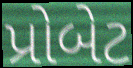
પ્રોબેટ